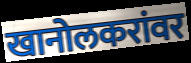
खानोलकरांवर